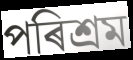
পৰিশ্ৰম